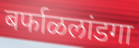
बर्फाळलांडगा